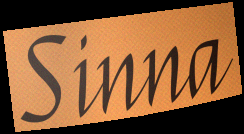
Sinna